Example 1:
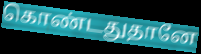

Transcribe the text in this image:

கொண்டதுதானே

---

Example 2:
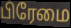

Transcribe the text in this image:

பிரேமை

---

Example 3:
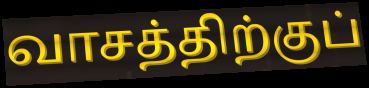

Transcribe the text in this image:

வாசத்திற்குப்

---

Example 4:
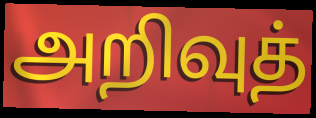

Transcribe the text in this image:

அறிவுத்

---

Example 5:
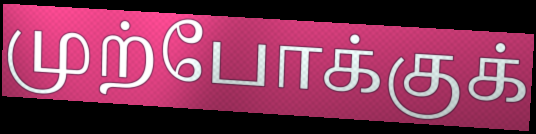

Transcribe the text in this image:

முற்போக்குக்